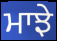
ਮਾਝੇ